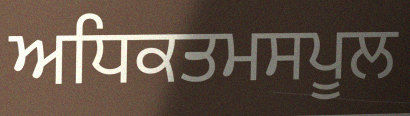
ਅਧਿਕਤਮਸਪੂਲ